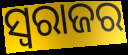
ସ୍ୱରାଜର